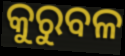
କୁରୁବଳ